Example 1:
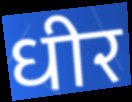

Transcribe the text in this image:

धीर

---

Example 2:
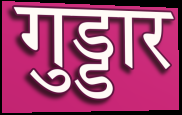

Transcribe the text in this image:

गुड्डार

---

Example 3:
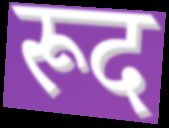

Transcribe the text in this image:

रूद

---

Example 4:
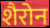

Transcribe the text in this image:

शैरोन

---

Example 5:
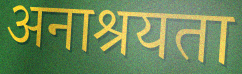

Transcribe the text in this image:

अनाश्रयता